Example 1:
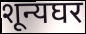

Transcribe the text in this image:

शून्यघर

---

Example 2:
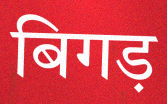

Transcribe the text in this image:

बिगड़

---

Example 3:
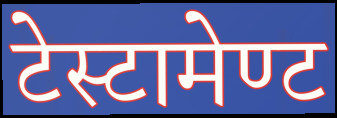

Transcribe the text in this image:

टेस्टामेण्ट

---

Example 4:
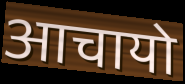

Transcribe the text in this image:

आचायो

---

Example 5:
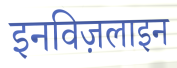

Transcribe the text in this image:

इनविज़लाइन